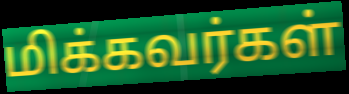
மிக்கவர்கள்